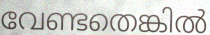
വേണ്ടതെങ്കിൽ